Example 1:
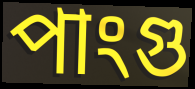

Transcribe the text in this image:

পাংগু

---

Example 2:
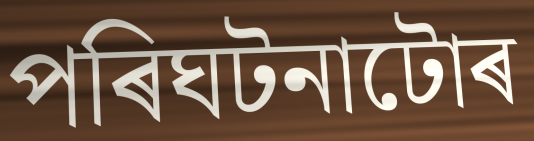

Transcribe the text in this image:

পৰিঘটনাটোৰ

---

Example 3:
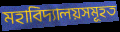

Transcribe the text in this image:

মহাবিদ্যালয়সমূহত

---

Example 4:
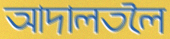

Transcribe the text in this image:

আদালতলৈ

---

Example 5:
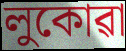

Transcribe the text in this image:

লুকোৱা